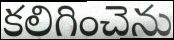
కలిగించెను